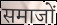
समाजों